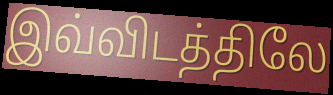
இவ்விடத்திலே